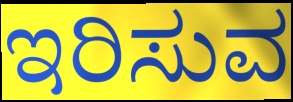
ಇರಿಸುವ